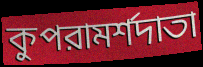
কুপরামর্শদাতা